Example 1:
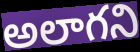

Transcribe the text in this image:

అలాగని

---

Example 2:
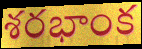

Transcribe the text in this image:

శరభాంక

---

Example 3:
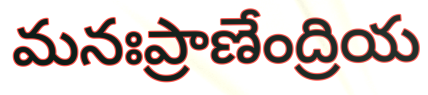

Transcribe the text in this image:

మనఃప్రాణేంద్రియ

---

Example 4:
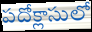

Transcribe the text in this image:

పదోక్లాసులో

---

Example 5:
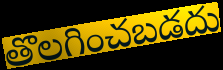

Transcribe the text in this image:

తొలగించబడదు